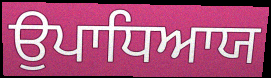
ਉਪਾਧਿਆਯ